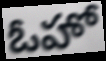
ఓహో